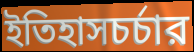
ইতিহাসচর্চার